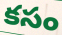
కసం